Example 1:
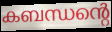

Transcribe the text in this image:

കബന്ധന്റെ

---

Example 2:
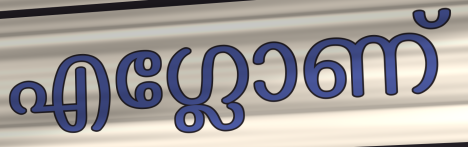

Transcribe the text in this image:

എഗ്ലോണ്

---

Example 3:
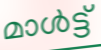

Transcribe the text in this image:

മാൾട്ട്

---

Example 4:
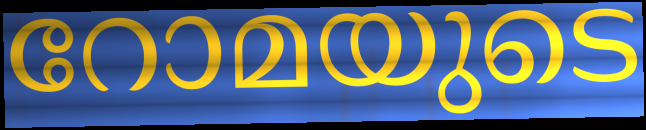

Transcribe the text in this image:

റോമയുടെ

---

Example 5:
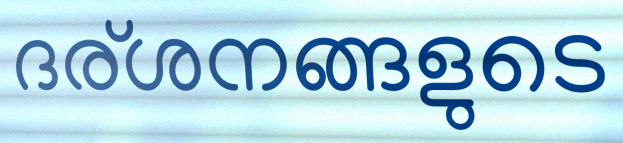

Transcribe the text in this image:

ദര്ശനങ്ങളുടെ